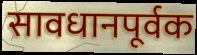
सावधानपूर्वक